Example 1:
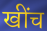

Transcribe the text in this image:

खींच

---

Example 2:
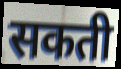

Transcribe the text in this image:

सकती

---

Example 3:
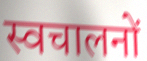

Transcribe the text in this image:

स्वचालनों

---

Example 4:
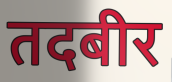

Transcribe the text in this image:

तदबीर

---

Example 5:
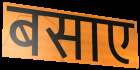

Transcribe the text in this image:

बसाए